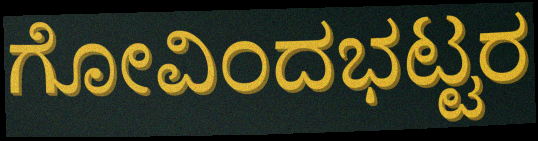
ಗೋವಿಂದಭಟ್ಟರ